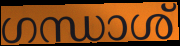
ഗന്ധാശ്